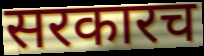
सरकारच